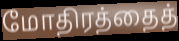
மோதிரத்தைத்